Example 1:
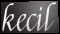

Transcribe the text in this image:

kecil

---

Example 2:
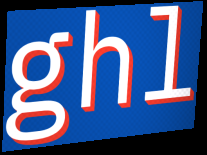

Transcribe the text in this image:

ghl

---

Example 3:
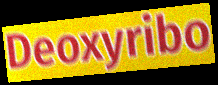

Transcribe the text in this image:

Deoxyribo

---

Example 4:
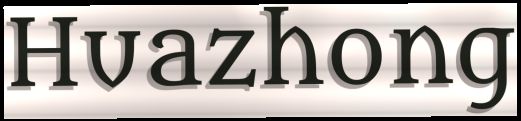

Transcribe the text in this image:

Huazhong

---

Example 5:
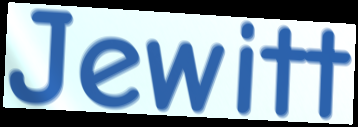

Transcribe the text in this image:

Jewitt